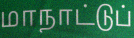
மாநாட்டுப்